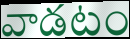
వాడటం